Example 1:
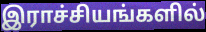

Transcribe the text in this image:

இராச்சியங்களில்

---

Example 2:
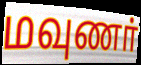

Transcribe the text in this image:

மவுணர்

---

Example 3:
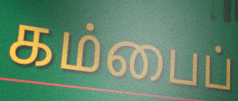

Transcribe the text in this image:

கம்பைப்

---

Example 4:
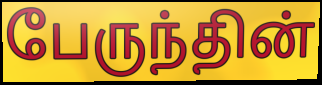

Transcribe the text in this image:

பேருந்தின்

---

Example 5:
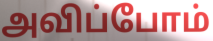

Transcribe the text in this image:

அவிப்போம்